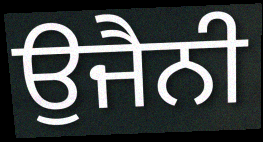
ਉਜੈਨੀ